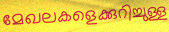
മേഖലകളെക്കുറിച്ചുള്ള